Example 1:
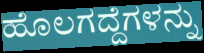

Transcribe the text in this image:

ಹೊಲಗದ್ದೆಗಳನ್ನು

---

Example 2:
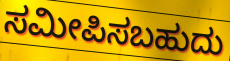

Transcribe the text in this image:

ಸಮೀಪಿಸಬಹುದು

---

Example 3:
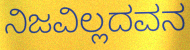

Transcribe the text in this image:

ನಿಜವಿಲ್ಲದವನ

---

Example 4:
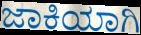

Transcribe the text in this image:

ಜಾಕಿಯಾಗಿ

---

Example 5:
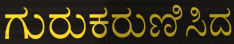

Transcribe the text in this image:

ಗುರುಕರುಣಿಸಿದ